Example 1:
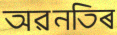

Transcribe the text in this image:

অৱনতিৰ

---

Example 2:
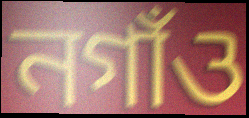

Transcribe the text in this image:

নগাঁও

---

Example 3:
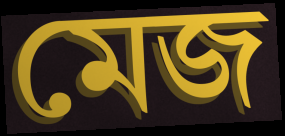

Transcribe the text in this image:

মেজ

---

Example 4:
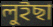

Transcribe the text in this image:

লুইছা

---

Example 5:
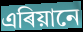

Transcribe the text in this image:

এৰিয়ানে